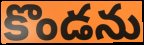
కొండను